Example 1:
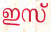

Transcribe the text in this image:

ഇസ്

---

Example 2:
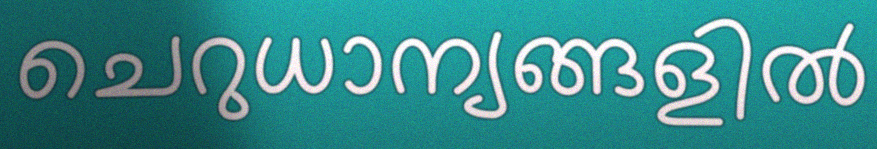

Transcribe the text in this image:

ചെറുധാന്യങ്ങളിൽ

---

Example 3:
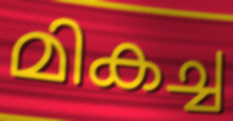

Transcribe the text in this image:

മികച്ച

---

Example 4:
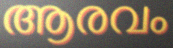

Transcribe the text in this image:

ആരവം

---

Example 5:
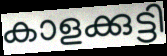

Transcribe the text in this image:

കാളക്കുട്ടി